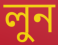
লুন